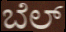
ಬೆಲ್